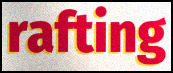
rafting